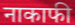
नाकाफी